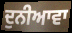
ਦੁਨੀਆਵਾ